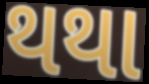
થથા